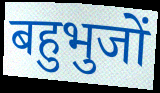
बहुभुजों